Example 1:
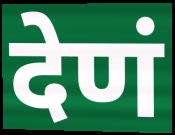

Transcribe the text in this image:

देणं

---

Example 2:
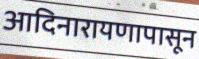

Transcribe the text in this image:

आदिनारायणापासून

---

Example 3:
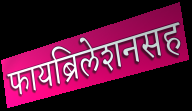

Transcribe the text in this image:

फायब्रिलेशनसह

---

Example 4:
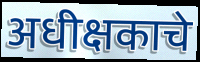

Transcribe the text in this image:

अधीक्षकाचे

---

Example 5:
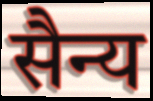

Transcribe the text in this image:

सैन्य